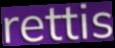
rettis